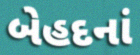
બેહદનાં